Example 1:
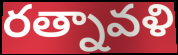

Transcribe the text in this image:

రత్నావళి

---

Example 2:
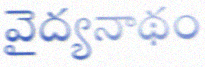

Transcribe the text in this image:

వైద్యనాథం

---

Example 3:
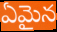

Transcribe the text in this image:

ఏమైన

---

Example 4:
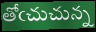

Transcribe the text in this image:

తోఁచుచున్న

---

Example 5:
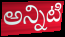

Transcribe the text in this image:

అన్నిటి